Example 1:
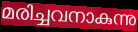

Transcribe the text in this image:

മരിച്ചവനാകുന്നു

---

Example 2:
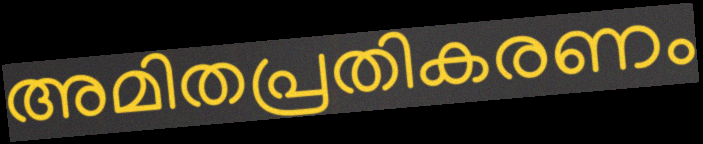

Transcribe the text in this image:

അമിതപ്രതികരണം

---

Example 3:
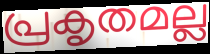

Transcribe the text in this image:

പ്രകൃതമല്ല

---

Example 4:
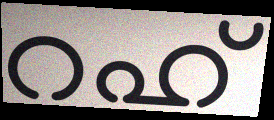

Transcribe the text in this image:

റഹ്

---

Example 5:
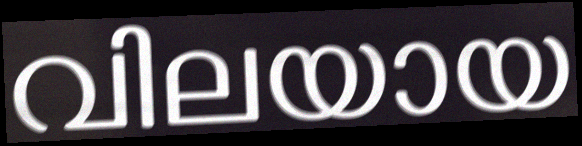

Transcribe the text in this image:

വിലയായ